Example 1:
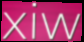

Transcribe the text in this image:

xiw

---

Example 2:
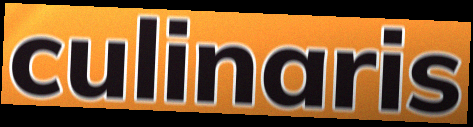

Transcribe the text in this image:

culinaris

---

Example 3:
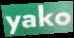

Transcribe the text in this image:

yako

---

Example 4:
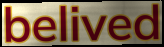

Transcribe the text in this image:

belived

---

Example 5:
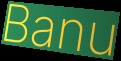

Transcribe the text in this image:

Banu